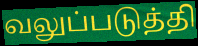
வலுப்படுத்தி